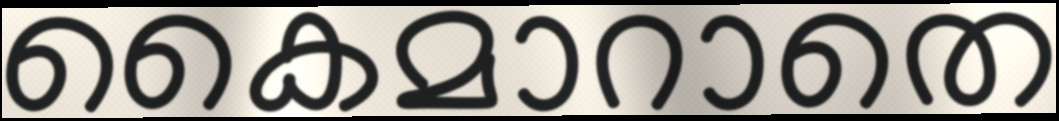
കൈമാറാതെ